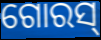
ଗୋରସ୍